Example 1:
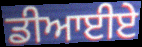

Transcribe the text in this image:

ਡੀਆਈਏ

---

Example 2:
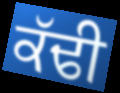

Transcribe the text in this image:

ਕੱਢੀ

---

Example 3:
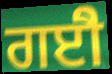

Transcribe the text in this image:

ਗਈੈ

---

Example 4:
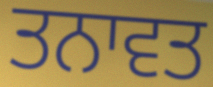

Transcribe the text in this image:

ਤਨਾਵਤ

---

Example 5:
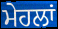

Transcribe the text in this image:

ਮੇਹਲਾਂ